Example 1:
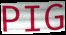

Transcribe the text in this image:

PIG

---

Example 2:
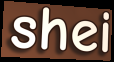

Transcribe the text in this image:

shei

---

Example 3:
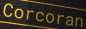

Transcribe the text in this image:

Corcoran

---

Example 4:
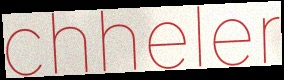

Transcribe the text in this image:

chheler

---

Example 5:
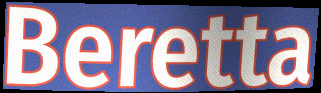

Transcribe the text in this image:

Beretta